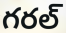
గరల్